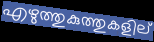
എഴുത്തുകുത്തുകളില്